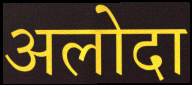
अलोदा